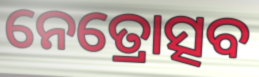
ନେତ୍ରୋତ୍ସବ